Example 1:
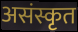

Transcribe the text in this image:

असंस्कृत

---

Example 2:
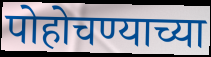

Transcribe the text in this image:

पोहोचण्याच्या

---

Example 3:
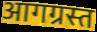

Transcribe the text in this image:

आगग्रस्त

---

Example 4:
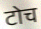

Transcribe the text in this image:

टोच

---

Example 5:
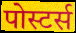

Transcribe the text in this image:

पोस्टर्स